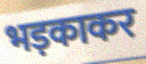
भड़काकर